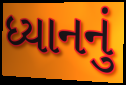
ધ્યાનનું